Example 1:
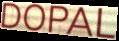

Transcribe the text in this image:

DOPAL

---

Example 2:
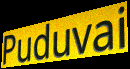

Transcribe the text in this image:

Puduvai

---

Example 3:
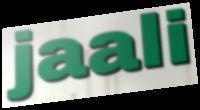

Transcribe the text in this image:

jaali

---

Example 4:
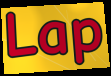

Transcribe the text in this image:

Lap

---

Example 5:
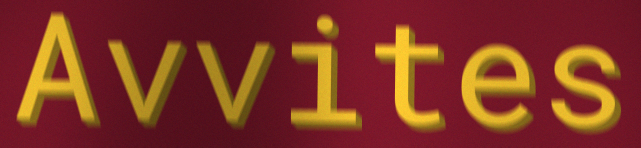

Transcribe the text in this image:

Avvites